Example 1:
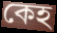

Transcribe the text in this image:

কেহ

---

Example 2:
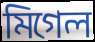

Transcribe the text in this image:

মিগেল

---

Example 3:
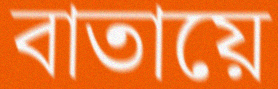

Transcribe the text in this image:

বাতায়ে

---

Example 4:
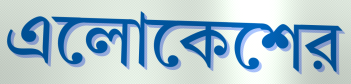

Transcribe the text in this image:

এলোকেশের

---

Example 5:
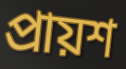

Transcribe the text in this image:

প্রায়শ